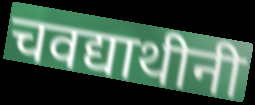
चवद्याथीनी